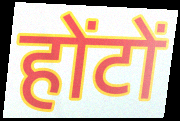
होंटों